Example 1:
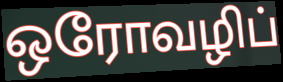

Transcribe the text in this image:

ஒரோவழிப்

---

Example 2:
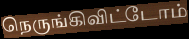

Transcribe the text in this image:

நெருங்கிவிட்டோம்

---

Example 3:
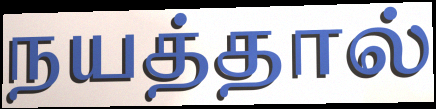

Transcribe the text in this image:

நயத்தால்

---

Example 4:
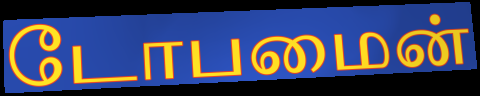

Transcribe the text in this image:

டோபமைன்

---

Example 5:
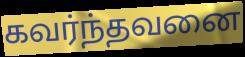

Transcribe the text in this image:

கவர்ந்தவனை